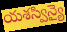
యశస్విన్యై